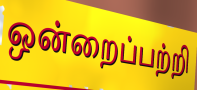
ஒன்றைப்பற்றி